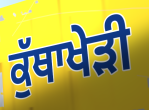
ਕੁੱਥਾਖੇੜੀ